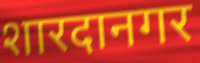
शारदानगर